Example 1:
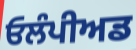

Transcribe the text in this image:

ਓਲੰਪੀਅਡ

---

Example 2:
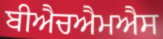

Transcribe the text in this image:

ਬੀਐਚਐਮਐਸ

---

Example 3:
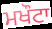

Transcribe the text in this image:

ਮਖੌਟਾ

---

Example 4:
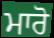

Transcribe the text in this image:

ਮਾਰੋ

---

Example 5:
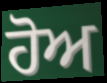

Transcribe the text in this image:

ਹੋਅ